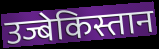
उज्बेकिस्तान